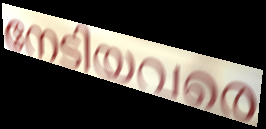
നേടിയവരെ